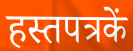
हस्तपत्रकें